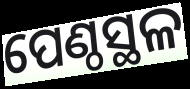
ପେଣ୍ଠସ୍ଥଳ